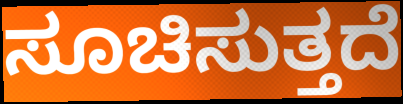
ಸೂಚಿಸುತ್ತದೆ